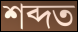
শব্দত